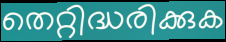
തെറ്റിദ്ധരിക്കുക